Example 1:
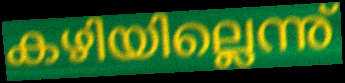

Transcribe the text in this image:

കഴിയില്ലെന്നു്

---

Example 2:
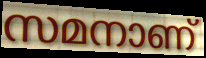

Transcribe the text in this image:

സമനാണ്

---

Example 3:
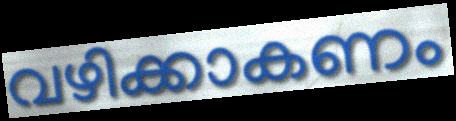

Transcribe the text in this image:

വഴിക്കാകണം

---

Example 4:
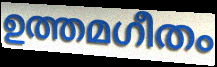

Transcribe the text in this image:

ഉത്തമഗീതം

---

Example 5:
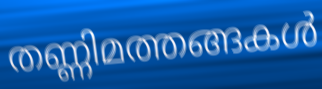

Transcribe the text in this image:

തണ്ണിമത്തങ്ങകൾ